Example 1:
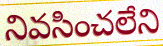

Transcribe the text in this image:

నివసించలేని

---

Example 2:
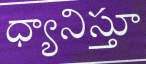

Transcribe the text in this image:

ధ్యానిస్తూ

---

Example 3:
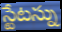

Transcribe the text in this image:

స్టేటస్ను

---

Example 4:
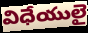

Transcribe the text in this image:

విధేయులై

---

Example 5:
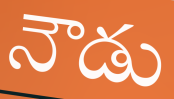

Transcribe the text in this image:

నౌడు